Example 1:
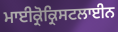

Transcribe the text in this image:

ਮਾਈਕ੍ਰੋਕ੍ਰਿਸਟਲਾਈਨ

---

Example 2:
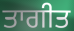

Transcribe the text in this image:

ਤਾਗੀਤ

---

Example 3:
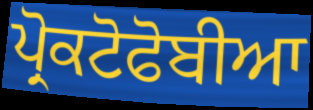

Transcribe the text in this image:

ਪ੍ਰੋਕਟੋਫੋਬੀਆ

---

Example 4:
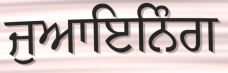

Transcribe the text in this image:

ਜੁਆਇਨਿੰਗ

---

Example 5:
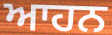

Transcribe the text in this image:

ਆਹਨ